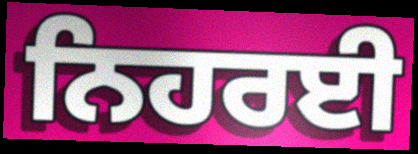
ਨਿਹਰਈ